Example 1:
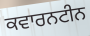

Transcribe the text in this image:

ਕਵਾਰਨਟੀਨ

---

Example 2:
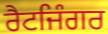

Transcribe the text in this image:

ਰੈਟਜਿੰਗਰ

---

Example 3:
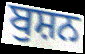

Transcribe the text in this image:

ਬੁਸ਼ਨ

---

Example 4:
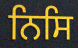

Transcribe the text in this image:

ਨਿਸਿ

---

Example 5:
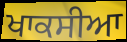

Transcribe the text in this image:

ਖਾਕਸੀਆ